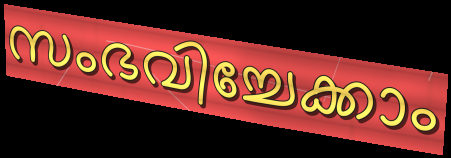
സംഭവിച്ചേക്കാം